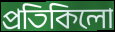
প্ৰতিকিলো